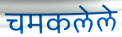
चमकलेले